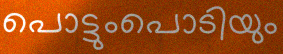
പൊട്ടുംപൊടിയും